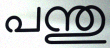
പന്തു